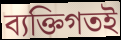
ব্যক্তিগতই